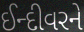
ઈન્દીવરને